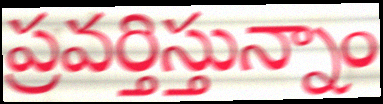
ప్రవర్తిస్తున్నాం